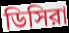
ডিসিরা